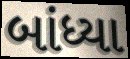
બાંધ્યા